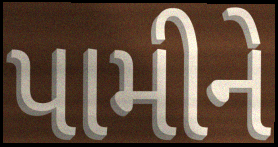
પામીને